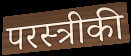
परस्त्रीकी